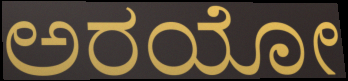
ಅರಯೋ